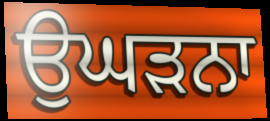
ਉਘੜਨਾ